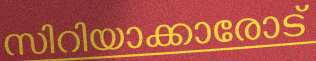
സിറിയാക്കാരോട്